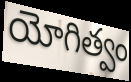
యోగిత్వం